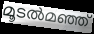
മൂടൽമഞ്ഞ്